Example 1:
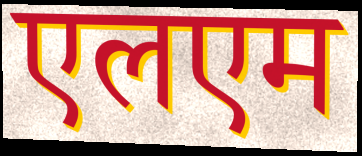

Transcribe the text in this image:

एलएम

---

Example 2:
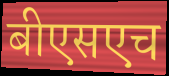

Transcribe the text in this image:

बीएसएच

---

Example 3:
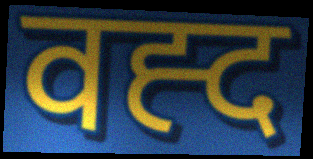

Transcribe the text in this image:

वह्द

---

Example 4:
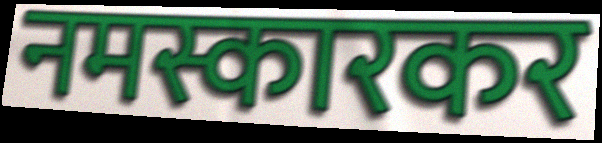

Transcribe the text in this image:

नमस्कारकर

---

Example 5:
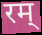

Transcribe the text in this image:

रम्